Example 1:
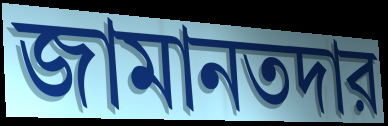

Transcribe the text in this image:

জামানতদার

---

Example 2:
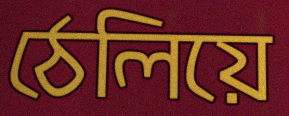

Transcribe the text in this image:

ঠেলিয়ে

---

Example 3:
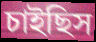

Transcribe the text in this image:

চাইছিস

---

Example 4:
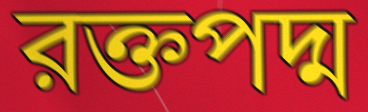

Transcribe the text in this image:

রক্তপদ্ম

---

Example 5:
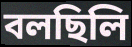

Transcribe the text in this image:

বলছিলি